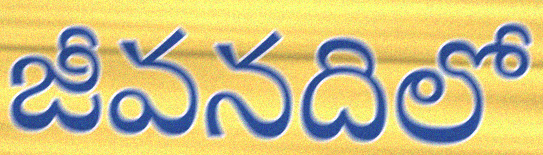
జీవనదిలో